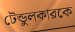
টেন্ডুলকারকে